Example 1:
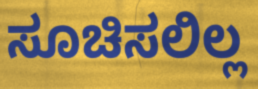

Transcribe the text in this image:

ಸೂಚಿಸಲಿಲ್ಲ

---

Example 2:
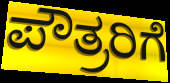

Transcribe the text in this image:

ಪೌತ್ರರಿಗೆ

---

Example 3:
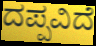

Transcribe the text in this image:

ದಪ್ಪವಿದೆ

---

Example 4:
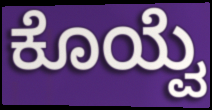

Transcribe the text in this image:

ಕೊಯ್ವೆ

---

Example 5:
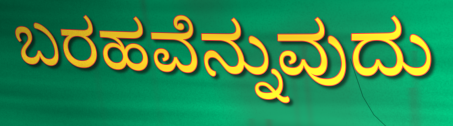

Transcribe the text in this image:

ಬರಹವೆನ್ನುವುದು